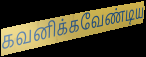
கவனிக்கவேண்டிய